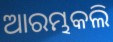
ଆରମ୍ଭକଲି